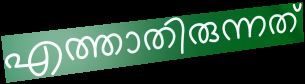
എത്താതിരുന്നത്